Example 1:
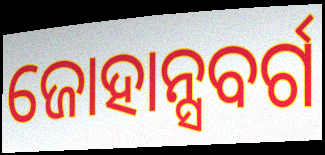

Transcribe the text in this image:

ଜୋହାନ୍ସବର୍ଗ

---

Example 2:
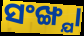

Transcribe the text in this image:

ସଂଙ୍ଖ୍ଯା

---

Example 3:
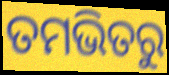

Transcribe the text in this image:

ତମଭିତରୁ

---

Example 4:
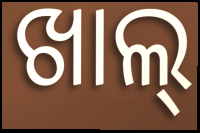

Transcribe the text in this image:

ଖାଲ୍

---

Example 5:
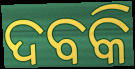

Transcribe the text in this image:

ଦବକି